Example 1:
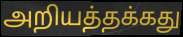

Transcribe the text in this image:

அறியத்தக்கது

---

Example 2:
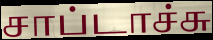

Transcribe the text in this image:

சாப்டாச்சு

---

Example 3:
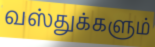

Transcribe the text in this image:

வஸ்துக்களும்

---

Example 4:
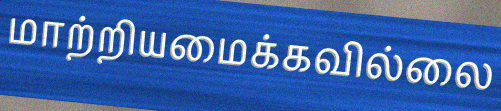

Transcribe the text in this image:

மாற்றியமைக்கவில்லை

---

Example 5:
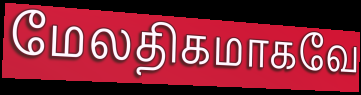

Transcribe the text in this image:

மேலதிகமாகவே